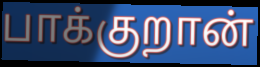
பாக்குறான்